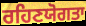
ਰਹਿਣਯੋਗਤਾ